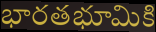
భారతభూమికి